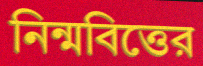
নিন্মবিত্তের